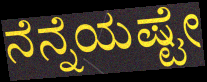
ನೆನ್ನೆಯಷ್ಟೇ